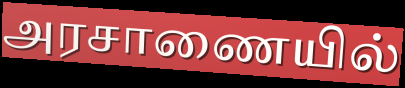
அரசாணையில்